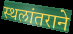
स्थलांतराने